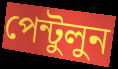
পেন্টুলুন